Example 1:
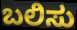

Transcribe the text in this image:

ಬಲಿಸು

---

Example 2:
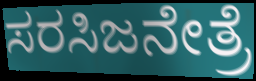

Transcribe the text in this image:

ಸರಸಿಜನೇತ್ರೆ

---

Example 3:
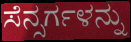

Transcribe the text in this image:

ಸೆನ್ಸರ್ಗಳನ್ನು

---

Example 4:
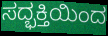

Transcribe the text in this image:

ಸದ್ಭಕ್ತಿಯಿಂದ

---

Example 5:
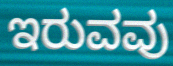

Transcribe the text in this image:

ಇರುವವು